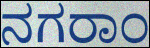
ನಗರಾಂ